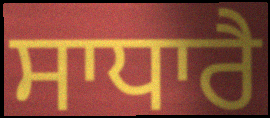
ਸਾਧਾਰੈ